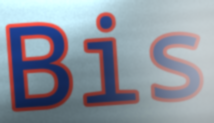
Bis